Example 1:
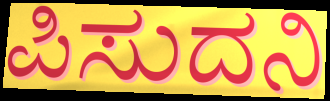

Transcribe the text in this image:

ಪಿಸುದನಿ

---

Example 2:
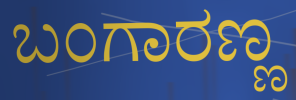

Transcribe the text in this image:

ಬಂಗಾರಣ್ಣ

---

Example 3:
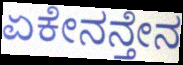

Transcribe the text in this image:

ಏಕೇನನ್ತೇನ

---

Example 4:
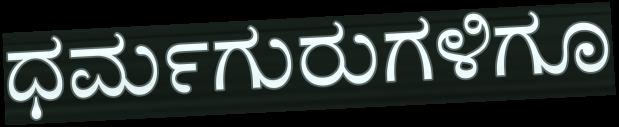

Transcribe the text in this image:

ಧರ್ಮಗುರುಗಳಿಗೂ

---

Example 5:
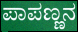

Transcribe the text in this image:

ಪಾಪಣ್ಣನ